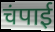
चंपाई